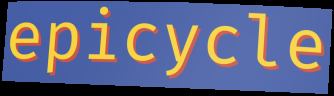
epicycle